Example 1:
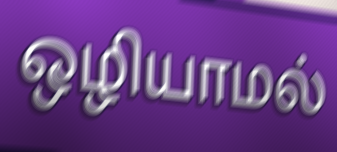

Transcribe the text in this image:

ஒழியாமல்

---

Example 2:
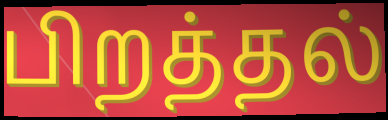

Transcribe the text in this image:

பிறத்தல்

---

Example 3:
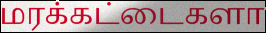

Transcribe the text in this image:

மரக்கட்டைகளா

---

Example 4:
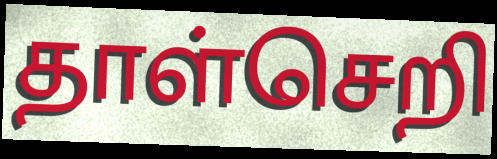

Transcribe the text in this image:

தாள்செறி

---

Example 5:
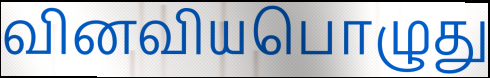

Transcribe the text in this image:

வினவியபொழுது